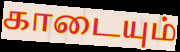
காடையும்